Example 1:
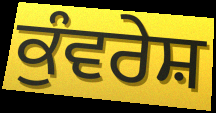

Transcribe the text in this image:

ਕੁੰਵਰੇਸ਼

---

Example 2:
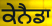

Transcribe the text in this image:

ਕੇਨੈਡਾ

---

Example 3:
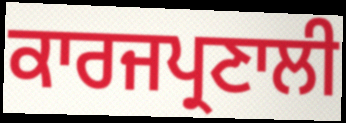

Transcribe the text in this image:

ਕਾਰਜਪ੍ਰਣਾਲੀ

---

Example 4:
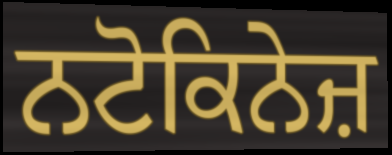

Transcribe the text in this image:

ਨਟੋਕਿਨੇਜ਼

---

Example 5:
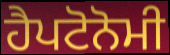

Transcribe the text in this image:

ਹੈਪਟੋਨੋਮੀ